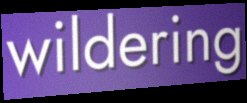
wildering